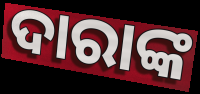
ଦାରାଙ୍କ